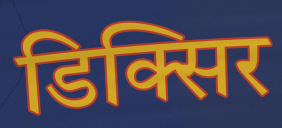
डिक्सिर